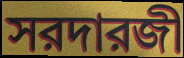
সরদারজী